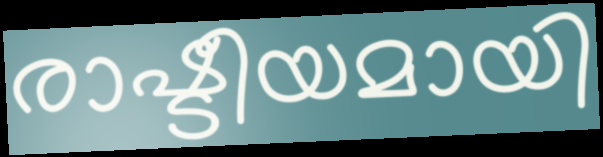
രാഷ്ടീയമായി